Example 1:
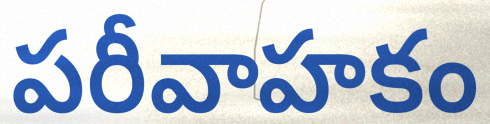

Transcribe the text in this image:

పరీవాహకం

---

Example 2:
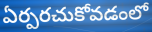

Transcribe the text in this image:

ఏర్పరచుకోవడంలో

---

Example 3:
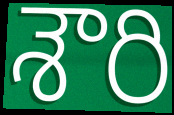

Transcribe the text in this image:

శౌరి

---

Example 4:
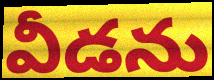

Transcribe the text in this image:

వీడను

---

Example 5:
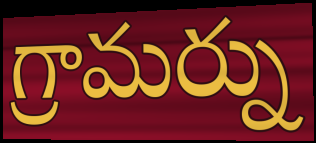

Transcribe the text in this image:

గ్రామర్ను